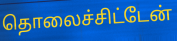
தொலைச்சிட்டேன்